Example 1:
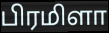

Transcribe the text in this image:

பிரமிளா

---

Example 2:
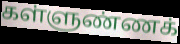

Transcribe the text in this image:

கள்ளுண்ணக்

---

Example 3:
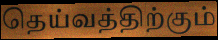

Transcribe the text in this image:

தெய்வத்திற்கும்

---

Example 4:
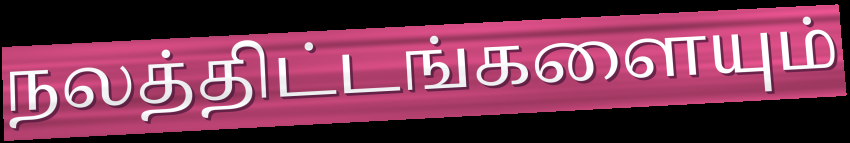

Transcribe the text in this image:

நலத்திட்டங்களையும்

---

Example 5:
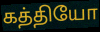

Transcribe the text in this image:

கத்தியோ